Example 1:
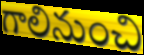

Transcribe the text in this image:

గాలినుంచి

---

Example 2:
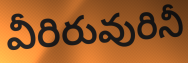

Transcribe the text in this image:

వీరిరువురినీ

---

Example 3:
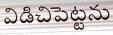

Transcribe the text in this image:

విడిచిపెట్టను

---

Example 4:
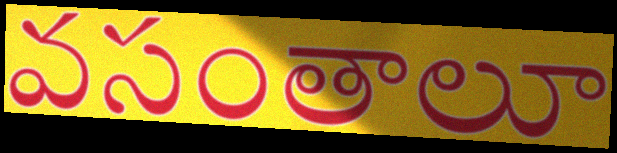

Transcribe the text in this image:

వసంతాలూ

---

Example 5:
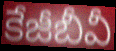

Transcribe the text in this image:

కేజీబీవీ